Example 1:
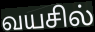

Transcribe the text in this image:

வயசில்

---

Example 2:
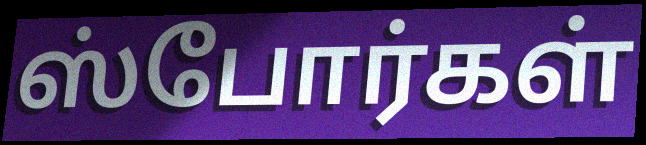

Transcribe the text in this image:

ஸ்போர்கள்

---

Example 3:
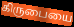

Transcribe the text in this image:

கிருபையை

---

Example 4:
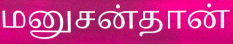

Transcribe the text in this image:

மனுசன்தான்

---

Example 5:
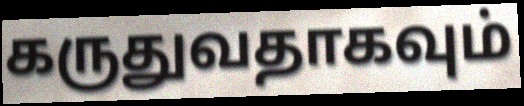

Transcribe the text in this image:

கருதுவதாகவும்